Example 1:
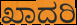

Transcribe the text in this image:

ಖಾದರಿ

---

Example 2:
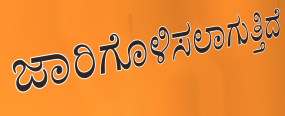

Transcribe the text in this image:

ಜಾರಿಗೊಳಿಸಲಾಗುತ್ತಿದೆ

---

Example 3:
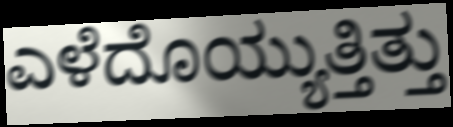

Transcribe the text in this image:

ಎಳೆದೊಯ್ಯುತ್ತಿತ್ತು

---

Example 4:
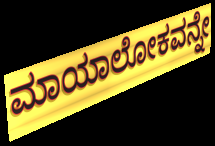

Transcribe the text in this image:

ಮಾಯಾಲೋಕವನ್ನೇ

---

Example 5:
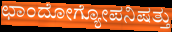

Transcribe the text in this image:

ಛಾಂದೋಗ್ಯೋಪನಿಷತ್ತು